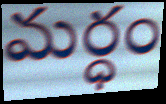
మర్ధం